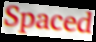
Spaced